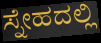
ಸ್ನೇಹದಲ್ಲಿ